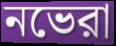
নভেরা